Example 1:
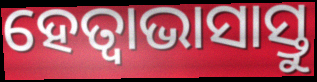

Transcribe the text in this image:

ହେତ୍ଵାଭାସାସ୍ତୁ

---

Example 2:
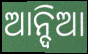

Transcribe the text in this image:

ଆନ୍ଦିଆ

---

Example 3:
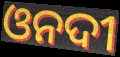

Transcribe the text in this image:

ଓନଦୀ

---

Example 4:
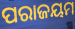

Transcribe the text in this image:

ପରାଜୟମ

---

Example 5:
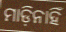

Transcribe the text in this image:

ମାଡ଼ିନାହିଁ